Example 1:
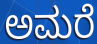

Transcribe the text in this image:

ಅಮರೆ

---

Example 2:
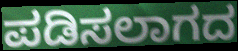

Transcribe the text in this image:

ಪಡಿಸಲಾಗದ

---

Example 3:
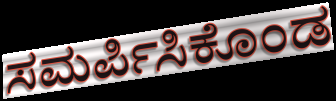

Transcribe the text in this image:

ಸಮರ್ಪಿಸಿಕೊಂಡ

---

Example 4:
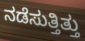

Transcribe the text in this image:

ನಡೆಸುತ್ತಿತ್ತು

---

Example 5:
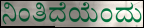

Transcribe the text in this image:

ನಿಂತಿದೆಯೆಂದು